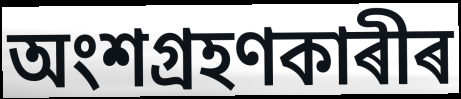
অংশগ্ৰহণকাৰীৰ